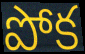
పోక